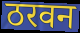
ठरवन